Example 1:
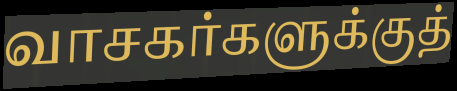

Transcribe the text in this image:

வாசகர்களுக்குத்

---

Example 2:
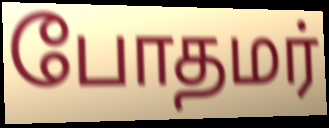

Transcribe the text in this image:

போதமர்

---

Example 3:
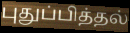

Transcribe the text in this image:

புதுப்பித்தல்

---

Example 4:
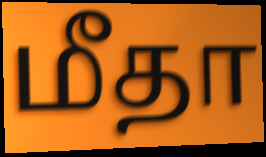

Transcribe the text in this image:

மீதா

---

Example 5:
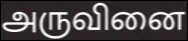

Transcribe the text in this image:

அருவினை